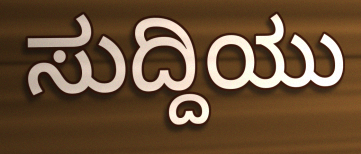
ಸುದ್ದಿಯು